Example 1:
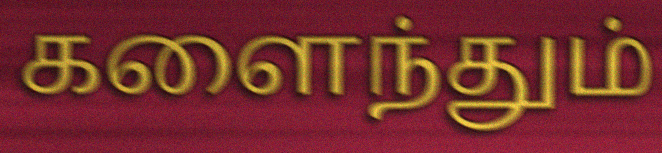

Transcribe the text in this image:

களைந்தும்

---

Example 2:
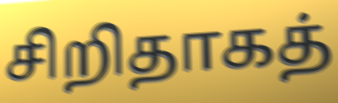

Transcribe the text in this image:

சிறிதாகத்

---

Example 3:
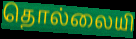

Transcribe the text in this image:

தொல்லையி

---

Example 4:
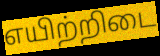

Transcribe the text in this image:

எயிற்றிடை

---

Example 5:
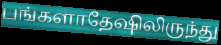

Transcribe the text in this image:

பங்களாதேஷிலிருந்து